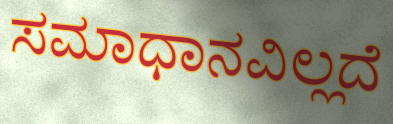
ಸಮಾಧಾನವಿಲ್ಲದೆ